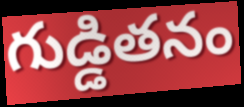
గుడ్డితనం